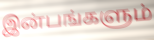
இன்பங்களும்